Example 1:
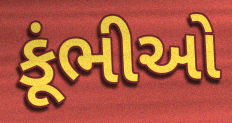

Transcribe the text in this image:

કૂંભીઓ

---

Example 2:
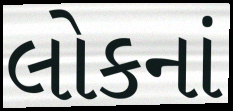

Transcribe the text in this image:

લોકનાં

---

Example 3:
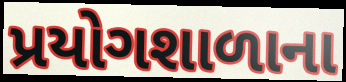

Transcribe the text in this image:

પ્રયોગશાળાના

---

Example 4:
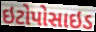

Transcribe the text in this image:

ઇટોપોસાઇડ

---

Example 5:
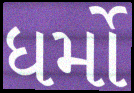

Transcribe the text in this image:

ધર્મો